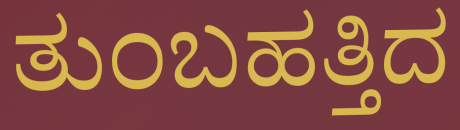
ತುಂಬಹತ್ತಿದ